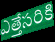
ఎత్తేసరికి